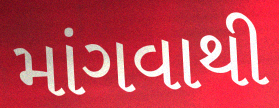
માંગવાથી